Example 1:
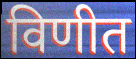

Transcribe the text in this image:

विणीत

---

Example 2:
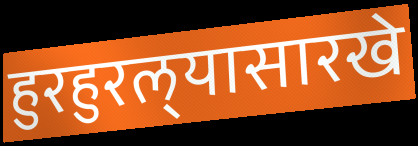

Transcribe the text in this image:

हुरहुरल्यासारखे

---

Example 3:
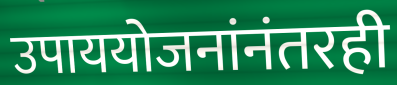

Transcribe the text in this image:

उपाययोजनांनंतरही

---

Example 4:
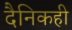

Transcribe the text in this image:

दैनिकही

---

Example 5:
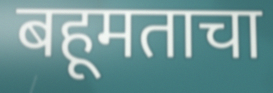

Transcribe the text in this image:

बहूमताचा